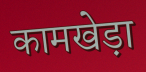
कामखेड़ा